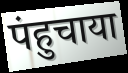
पंहुचाया